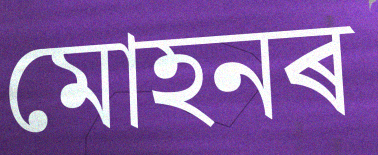
মোহনৰ